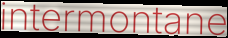
intermontane